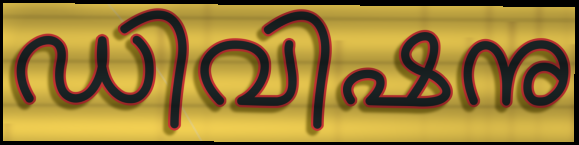
ഡിവിഷനു